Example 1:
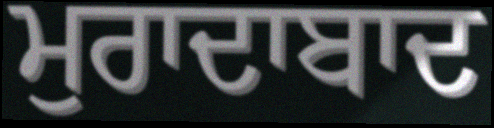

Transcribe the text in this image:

ਮੁਰਾਦਾਬਾਦ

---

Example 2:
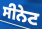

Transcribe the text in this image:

ਸੀਨੇਟ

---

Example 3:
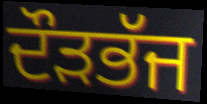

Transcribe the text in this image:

ਦੌੜਭੱਜ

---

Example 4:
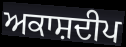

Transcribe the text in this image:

ਅਕਾਸ਼ਦੀਪ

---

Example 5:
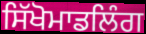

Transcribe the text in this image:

ਸਿੱਖੋਮਾਡਲਿੰਗ